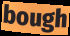
bough